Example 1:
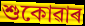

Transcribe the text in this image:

শুকোৱাৰ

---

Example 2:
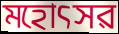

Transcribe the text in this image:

মহোৎসৱ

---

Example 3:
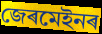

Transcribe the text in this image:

জেৰমেইনৰ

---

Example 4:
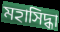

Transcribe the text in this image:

মহাসিদ্ধা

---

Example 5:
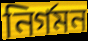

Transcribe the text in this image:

নিৰ্গমন